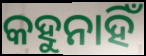
କହୁନାହିଁ